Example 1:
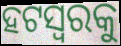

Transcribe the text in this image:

ହଟସ୍ଵରକୁ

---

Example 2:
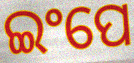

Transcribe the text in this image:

ଇଂପେ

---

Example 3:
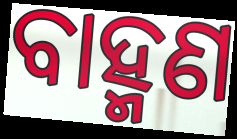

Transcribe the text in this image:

ବାହ୍ମଣ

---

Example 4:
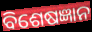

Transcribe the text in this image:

ବିଶେଷଜ୍ଞାନ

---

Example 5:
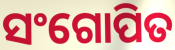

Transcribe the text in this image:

ସଂଗୋପିତ